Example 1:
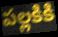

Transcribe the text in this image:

పల్లకికి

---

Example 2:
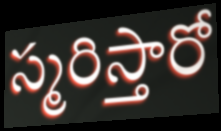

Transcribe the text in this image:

స్మరిస్తారో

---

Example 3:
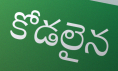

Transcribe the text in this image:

కోడలైన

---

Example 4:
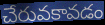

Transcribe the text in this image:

చేరువకావడం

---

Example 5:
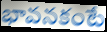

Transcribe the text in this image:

భావనకంటే